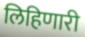
लिहिणारी